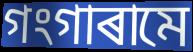
গংগাৰামে